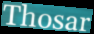
Thosar